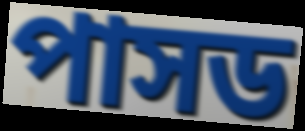
পাসড